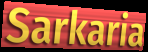
Sarkaria